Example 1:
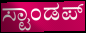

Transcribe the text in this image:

ಸ್ಟಾಂಡಪ್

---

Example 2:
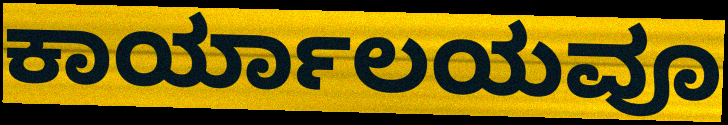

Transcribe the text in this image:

ಕಾರ್ಯಾಲಯವೂ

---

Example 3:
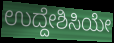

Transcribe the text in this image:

ಉದ್ದೇಶಿಸಿಯೇ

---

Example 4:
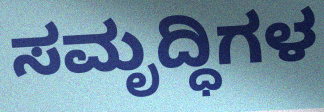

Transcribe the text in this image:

ಸಮೃದ್ಧಿಗಳ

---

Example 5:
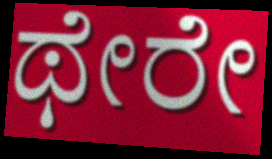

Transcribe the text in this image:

ಥೇರೇ